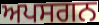
ਅਪਸਗਨ